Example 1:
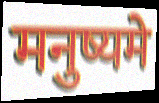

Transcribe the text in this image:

मनुष्यमे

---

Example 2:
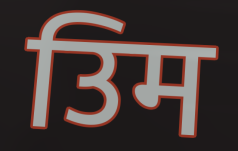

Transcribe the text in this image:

उिम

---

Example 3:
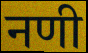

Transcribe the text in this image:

नणी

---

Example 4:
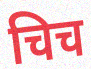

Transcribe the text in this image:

चिच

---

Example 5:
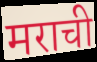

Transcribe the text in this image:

मराची